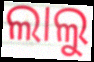
ଲାଲୁ